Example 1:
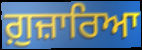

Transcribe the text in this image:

ਗ਼ੁਜ਼ਾਰਿਆ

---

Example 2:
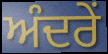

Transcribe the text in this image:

ਅੰਦਰੇਂ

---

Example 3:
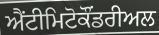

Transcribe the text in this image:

ਐਂਟੀਮਿਟੋਕੌਂਡਰੀਅਲ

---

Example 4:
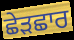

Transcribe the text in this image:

ਛੇੜਛਾਰ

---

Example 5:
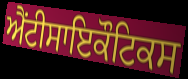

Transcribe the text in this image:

ਐਂਟੀਸਾਇਕੌਟਿਕਸ